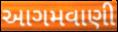
આગમવાણી